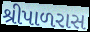
શ્રીપાળરાસ